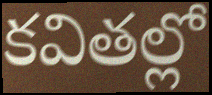
కవితల్లో